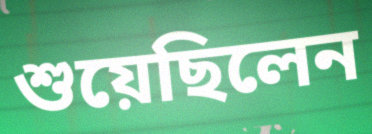
শুয়েছিলেন